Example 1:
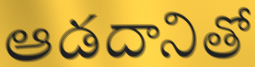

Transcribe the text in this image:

ఆడదానితో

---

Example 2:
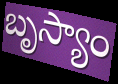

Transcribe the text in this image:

బృస్యాం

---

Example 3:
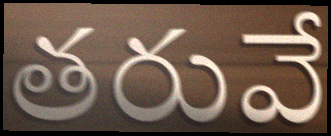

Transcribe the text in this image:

తరువే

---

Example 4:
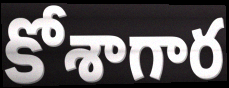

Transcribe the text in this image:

కోశాగార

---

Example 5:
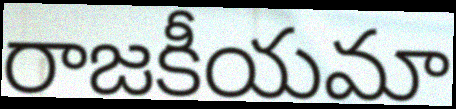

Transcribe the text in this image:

రాజకీయమా